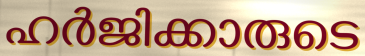
ഹർജിക്കാരുടെ